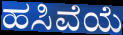
ಹಸಿವೆಯೆ